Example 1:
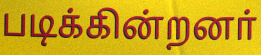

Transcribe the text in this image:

படிக்கின்றனர்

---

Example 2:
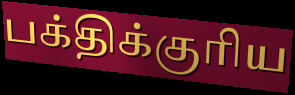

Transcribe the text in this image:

பக்திக்குரிய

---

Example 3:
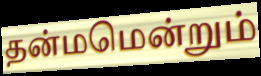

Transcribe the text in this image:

தன்மமென்றும்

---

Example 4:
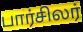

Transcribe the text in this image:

பார்சிலர்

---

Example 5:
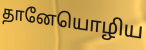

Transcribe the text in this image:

தானேயொழிய